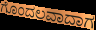
ಗೊಂದಲವಾದಾಗ